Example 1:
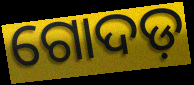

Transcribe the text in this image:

ଗୋଦଡ଼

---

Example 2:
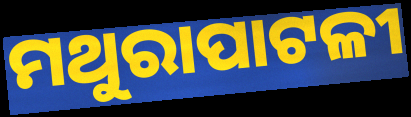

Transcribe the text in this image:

ମଥୁରାପାଟଳୀ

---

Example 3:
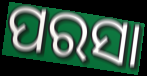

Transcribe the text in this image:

ପରସା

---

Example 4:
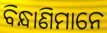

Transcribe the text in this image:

ବିନ୍ଧାଣିମାନେ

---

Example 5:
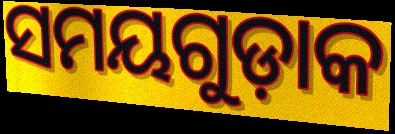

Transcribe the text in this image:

ସମୟଗୁଡ଼ାକ